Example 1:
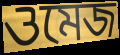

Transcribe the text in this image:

ওমেজ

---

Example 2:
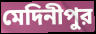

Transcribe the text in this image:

মেদিনীপুর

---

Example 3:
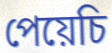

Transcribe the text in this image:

পেয়েচি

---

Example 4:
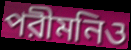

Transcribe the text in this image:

পরীমনিও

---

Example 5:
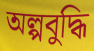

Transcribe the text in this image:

অল্পবুদ্ধি